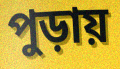
পুড়ায়